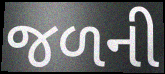
જળની